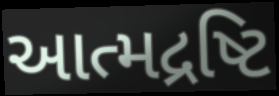
આત્મદ્રષ્ટિ